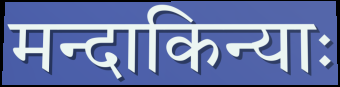
मन्दाकिन्याः